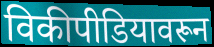
विकीपीडियावरून